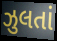
ઝુલતાં